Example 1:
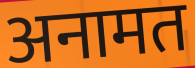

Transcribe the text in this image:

अनामत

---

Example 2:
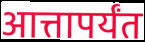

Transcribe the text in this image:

आत्तापर्यंत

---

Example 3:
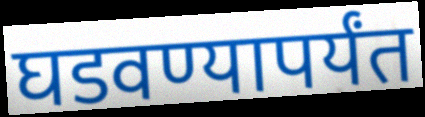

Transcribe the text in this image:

घडवण्यापर्यंत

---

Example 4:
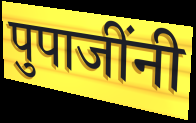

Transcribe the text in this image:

पुपाजींनी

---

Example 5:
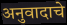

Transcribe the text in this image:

अनुवादाचे